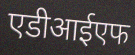
एडीआईएफ